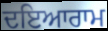
ਦਇਆਰਾਮ